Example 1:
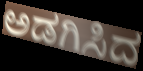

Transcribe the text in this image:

ಅಡಗಿಸಿದ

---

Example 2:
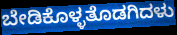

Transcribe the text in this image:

ಬೇಡಿಕೊಳ್ಳತೊಡಗಿದಳು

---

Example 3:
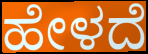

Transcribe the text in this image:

ಹೇಳದೆ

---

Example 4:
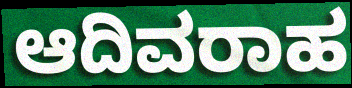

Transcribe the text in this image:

ಆದಿವರಾಹ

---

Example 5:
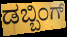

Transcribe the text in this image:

ಡಬ್ಬಿಂಗ್